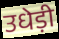
उधेड़ी